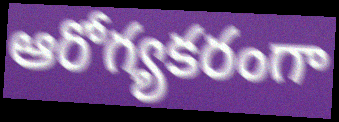
ఆరోగ్యకరంగా